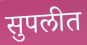
सुपलीत